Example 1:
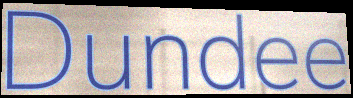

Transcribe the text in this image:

Dundee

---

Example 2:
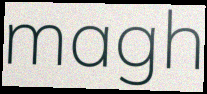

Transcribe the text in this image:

magh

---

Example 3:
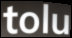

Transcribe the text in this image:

tolu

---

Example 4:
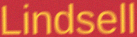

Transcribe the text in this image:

Lindsell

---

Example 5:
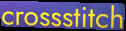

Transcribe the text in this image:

crossstitch